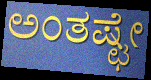
ಅಂತಷ್ಟೇ